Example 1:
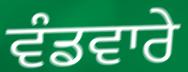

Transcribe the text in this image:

ਵੰਡਵਾਰੇ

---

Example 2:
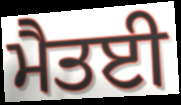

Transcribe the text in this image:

ਮੈਤਈ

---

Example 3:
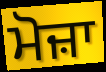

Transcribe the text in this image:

ਮੋਜ਼ਾ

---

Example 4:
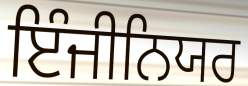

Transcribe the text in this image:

ਇੰਜੀਨਿਯਰ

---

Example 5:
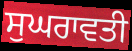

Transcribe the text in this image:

ਸੁਘਰਾਵਤੀ